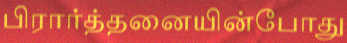
பிரார்த்தனையின்போது